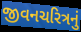
જીવનચરિત્રનું